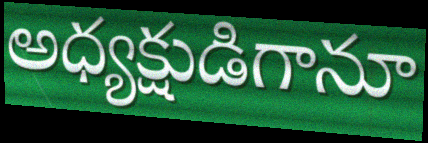
అధ్యక్షుడిగానూ